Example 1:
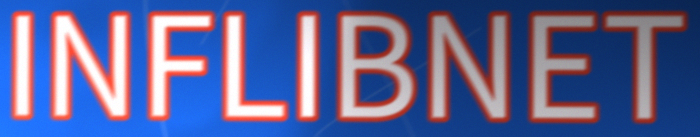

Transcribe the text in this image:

INFLIBNET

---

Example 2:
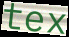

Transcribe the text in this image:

tex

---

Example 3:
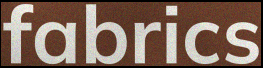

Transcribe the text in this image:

fabrics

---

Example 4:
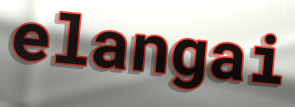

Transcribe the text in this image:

elangai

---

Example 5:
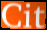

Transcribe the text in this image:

Cit